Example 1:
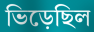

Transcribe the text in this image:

ভিড়েছিল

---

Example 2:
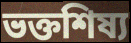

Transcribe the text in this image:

ভক্তশিষ্য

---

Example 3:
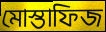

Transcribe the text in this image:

মোস্তাফিজ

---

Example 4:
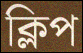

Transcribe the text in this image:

ক্লিপ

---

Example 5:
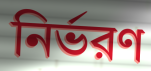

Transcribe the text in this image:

নির্ভরণ